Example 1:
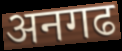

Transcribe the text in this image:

अनगढ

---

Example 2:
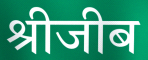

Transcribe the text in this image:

श्रीजीब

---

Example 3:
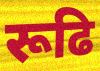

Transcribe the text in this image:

रूढि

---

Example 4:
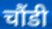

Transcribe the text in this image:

चौंडी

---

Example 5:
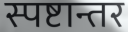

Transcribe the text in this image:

स्पष्टान्तर